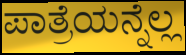
ಪಾತ್ರೆಯನ್ನೆಲ್ಲ